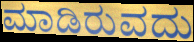
ಮಾಡಿರುವದು